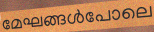
മേഘങ്ങൾപോലെ